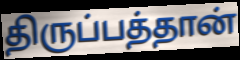
திருப்பத்தான்